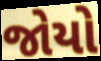
જોયો